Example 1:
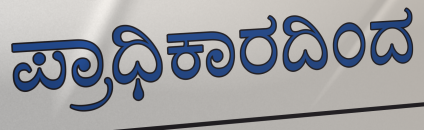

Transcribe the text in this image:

ಪ್ರಾಧಿಕಾರದಿಂದ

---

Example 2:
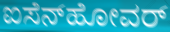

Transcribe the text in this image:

ಐಸೆನ್‍ಹೋವರ್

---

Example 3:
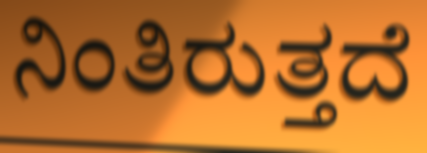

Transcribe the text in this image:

ನಿಂತಿರುತ್ತದೆ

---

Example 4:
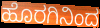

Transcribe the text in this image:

ಹೊರಗಿನಿಂದ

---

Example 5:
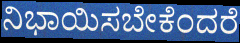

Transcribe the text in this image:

ನಿಭಾಯಿಸಬೇಕೆಂದರೆ